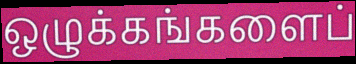
ஒழுக்கங்களைப்